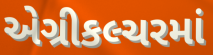
એગ્રીકલ્ચરમાં